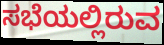
ಸಭೆಯಲ್ಲಿರುವ